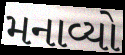
મનાવ્યો